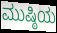
ಮುಷ್ಠಿಯ